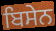
ਬਿਸੇਨ